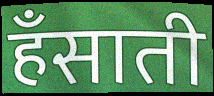
हँसाती